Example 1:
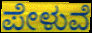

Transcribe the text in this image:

ಪೇಳುವೆ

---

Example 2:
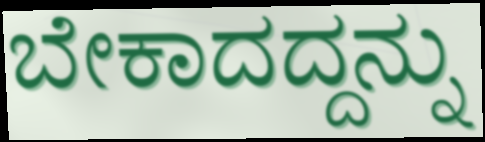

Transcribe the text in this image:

ಬೇಕಾದದ್ದನ್ನು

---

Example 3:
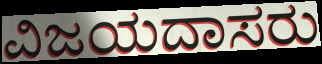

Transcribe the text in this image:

ವಿಜಯದಾಸರು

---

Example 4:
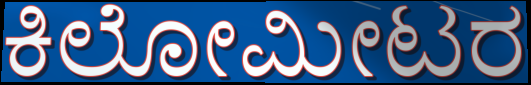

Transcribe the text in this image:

ಕಿಲೋಮೀಟರ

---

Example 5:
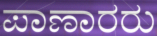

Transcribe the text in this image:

ಪಾಣಾರರು